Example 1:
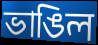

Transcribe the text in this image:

ভাঙিল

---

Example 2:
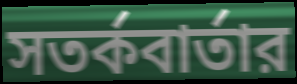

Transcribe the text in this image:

সতর্কবার্তার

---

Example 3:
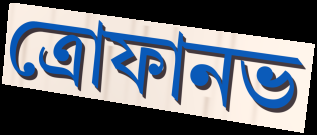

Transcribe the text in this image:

ত্রোফানভ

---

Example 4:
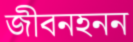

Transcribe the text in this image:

জীবনহনন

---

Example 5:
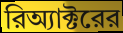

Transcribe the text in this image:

রিঅ্যাক্টরের